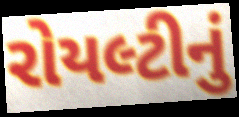
રોયલ્ટીનું